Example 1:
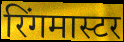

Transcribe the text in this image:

रिंगमास्टर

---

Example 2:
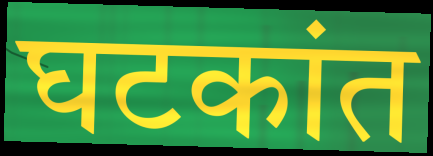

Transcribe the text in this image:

घटकांत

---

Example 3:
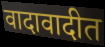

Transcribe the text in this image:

वादावादीत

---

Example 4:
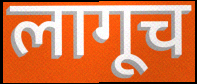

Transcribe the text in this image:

लागूच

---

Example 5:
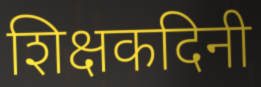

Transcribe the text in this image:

शिक्षकदिनी